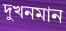
দুখনমান